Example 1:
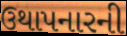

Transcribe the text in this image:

ઉથાપનારની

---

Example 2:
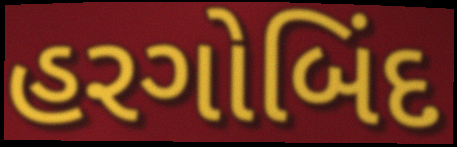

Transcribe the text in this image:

હરગોબિંદ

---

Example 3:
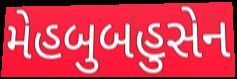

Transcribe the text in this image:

મેહબુબહુસેન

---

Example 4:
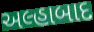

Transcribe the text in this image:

અલ્હાબાદ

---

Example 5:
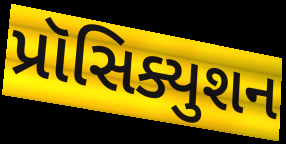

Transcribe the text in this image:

પ્રૉસિક્યુશન